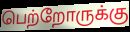
பெற்றோருக்கு